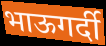
भाऊगर्दी